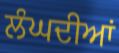
ਲੰਘਦੀਆਂ